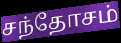
சந்தோசம்